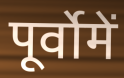
पूर्वोमें